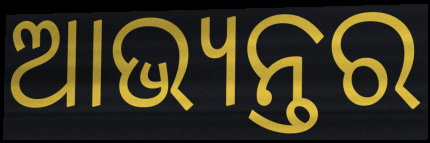
ଆଭ୍ୟନ୍ତର